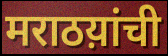
मराठय़ांची